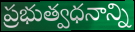
ప్రభుత్వధనాన్ని